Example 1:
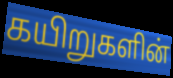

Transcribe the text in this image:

கயிறுகளின்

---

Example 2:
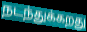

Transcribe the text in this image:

நடந்துக்கறது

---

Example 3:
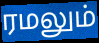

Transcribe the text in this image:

ரமலும்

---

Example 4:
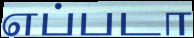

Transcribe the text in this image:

எப்படா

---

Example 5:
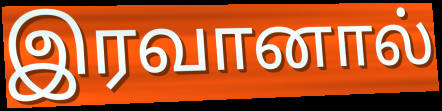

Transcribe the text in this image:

இரவானால்